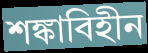
শঙ্কাবিহীন